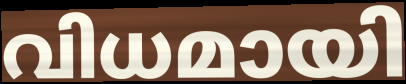
വിധമായി